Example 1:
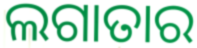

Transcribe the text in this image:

ଲଗାତାର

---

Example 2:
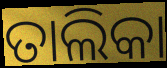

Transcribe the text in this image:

ତାଲିକା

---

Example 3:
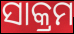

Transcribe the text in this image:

ସାକ୍ରମ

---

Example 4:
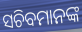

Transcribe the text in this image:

ସଚିବମାନଙ୍କ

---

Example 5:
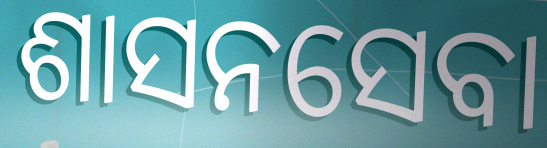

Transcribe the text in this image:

ଶାସନସେବା